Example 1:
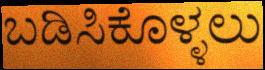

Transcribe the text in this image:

ಬಡಿಸಿಕೊಳ್ಳಲು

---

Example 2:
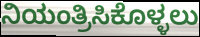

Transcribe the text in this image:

ನಿಯಂತ್ರಿಸಿಕೊಳ್ಳಲು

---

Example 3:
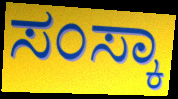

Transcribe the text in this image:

ಸಂಸ್ಕಾ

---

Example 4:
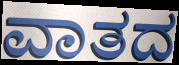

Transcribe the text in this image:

ವಾತದ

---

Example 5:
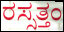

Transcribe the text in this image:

ರಸ್ಸತ್ತಂ